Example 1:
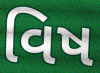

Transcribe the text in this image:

વિષ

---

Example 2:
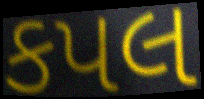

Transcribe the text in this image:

કપલ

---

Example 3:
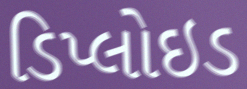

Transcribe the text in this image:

ડિપ્લોઇડ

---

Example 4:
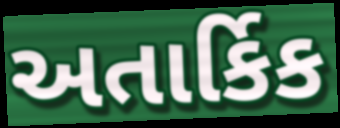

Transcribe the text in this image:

અતાર્કિક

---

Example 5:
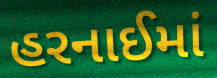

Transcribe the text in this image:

હરનાઈમાં